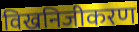
विखनिजीकरण